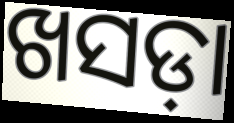
ଖସଡ଼ା